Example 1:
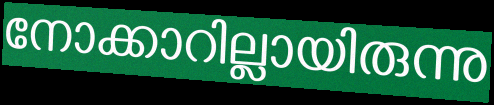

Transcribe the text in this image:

നോക്കാറില്ലായിരുന്നു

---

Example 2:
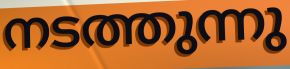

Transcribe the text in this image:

നടത്തുന്നു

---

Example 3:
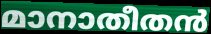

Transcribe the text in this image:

മാനാതീതൻ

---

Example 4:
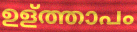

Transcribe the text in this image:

ഉള്ത്താപം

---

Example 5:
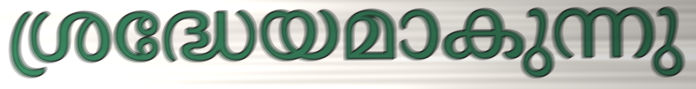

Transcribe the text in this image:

ശ്രദ്ധേയമാകുന്നു